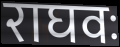
राघवः